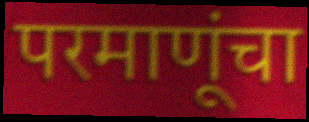
परमाणूंचा